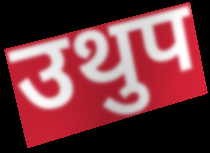
उथुप